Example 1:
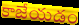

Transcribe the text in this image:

కాజేయడం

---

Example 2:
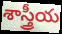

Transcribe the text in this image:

శాస్త్రీయ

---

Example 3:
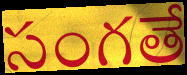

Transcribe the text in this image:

సంగతే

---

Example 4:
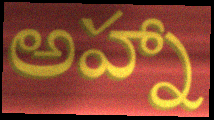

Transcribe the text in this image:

అహ్నా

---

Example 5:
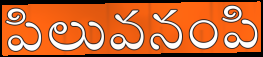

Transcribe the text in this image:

పిలువనంపి